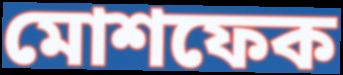
মোশফেক